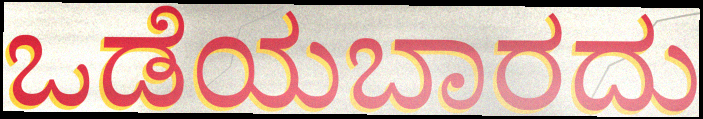
ಒಡೆಯಬಾರದು